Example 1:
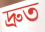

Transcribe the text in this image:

দ্রুত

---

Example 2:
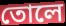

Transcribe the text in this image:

তোলে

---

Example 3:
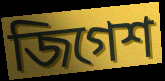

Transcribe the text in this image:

জিগেশ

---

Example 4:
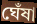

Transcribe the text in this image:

ঘেঁষা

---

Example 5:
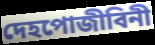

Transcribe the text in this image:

দেহপোজীবিনী